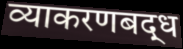
व्याकरणबद्ध